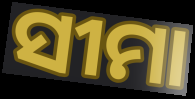
ସୀମା